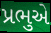
પ્રભુએ